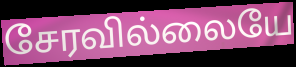
சேரவில்லையே